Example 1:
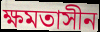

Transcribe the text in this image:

ক্ষমতাসীন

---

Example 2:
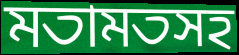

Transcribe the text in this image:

মতামতসহ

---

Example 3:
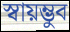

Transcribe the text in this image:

স্বায়ম্ভুব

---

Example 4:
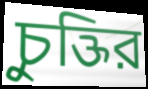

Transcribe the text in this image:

চুক্তির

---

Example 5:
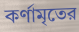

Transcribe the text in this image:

কর্ণামৃতের